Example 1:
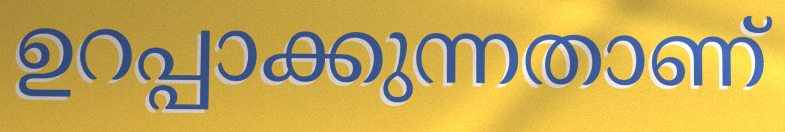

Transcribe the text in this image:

ഉറപ്പാക്കുന്നതാണ്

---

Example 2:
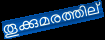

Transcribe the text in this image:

തൂക്കുമരത്തില്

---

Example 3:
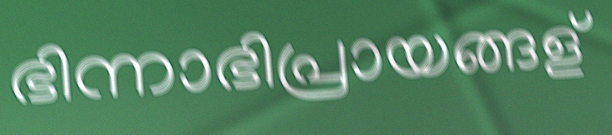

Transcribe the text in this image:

ഭിന്നാഭിപ്രായങ്ങള്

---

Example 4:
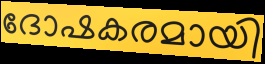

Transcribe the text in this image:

ദോഷകരമായി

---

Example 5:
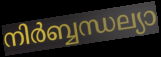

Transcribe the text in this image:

നിർബ്ബന്ധല്യാ